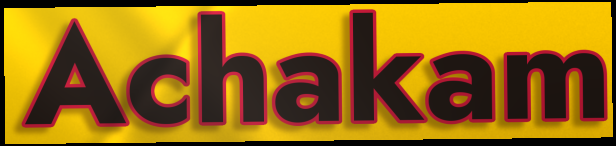
Achakam